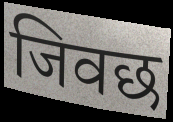
जिवछ